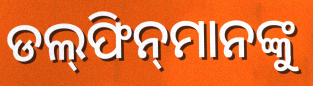
ଡଲ୍‍ଫିନ୍‍ମାନଙ୍କୁ